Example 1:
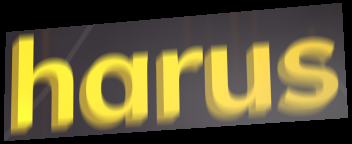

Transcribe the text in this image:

harus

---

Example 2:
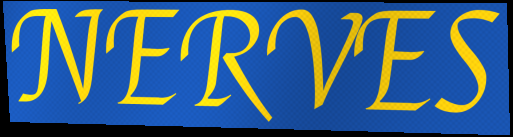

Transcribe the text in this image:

NERVES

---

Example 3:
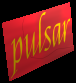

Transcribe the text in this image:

pulsar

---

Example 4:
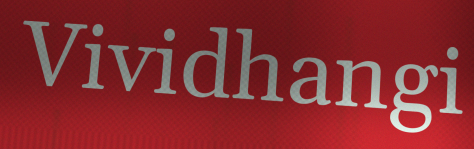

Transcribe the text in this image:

Vividhangi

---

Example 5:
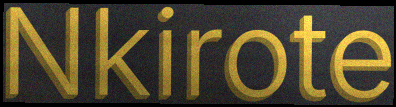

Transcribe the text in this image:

Nkirote